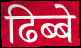
ढिब्बे